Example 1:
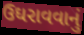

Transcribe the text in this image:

ઉઘરાવવાનું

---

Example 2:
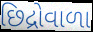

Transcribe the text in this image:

છિદ્રોવાળા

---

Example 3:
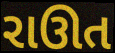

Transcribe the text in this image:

રાઊત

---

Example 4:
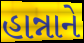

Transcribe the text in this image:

હાન્નાને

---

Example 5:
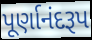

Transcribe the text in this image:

પૂર્ણાનંદરૂપ